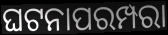
ଘଟନାପରମ୍ପରା